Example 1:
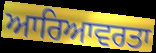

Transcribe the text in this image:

ਆਰਿਆਵਰਤਾ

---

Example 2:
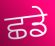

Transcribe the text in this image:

ਛਡੇ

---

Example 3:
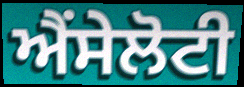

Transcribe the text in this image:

ਐਂਸੇਲੋਟੀ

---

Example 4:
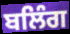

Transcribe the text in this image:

ਬਲਿੰਗ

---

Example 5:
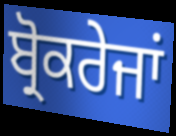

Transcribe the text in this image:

ਬ੍ਰੋਕਰੇਜਾਂ